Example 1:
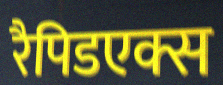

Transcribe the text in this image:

रैपिडएक्स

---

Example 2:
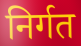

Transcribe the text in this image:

निर्गत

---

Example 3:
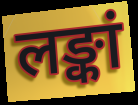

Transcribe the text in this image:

लङ्कां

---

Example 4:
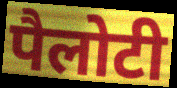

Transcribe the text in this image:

पैलोटी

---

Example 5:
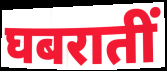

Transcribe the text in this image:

घबरातीं